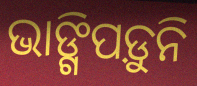
ଭାଙ୍ଗିପଡ଼ୁନି